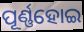
ପୂର୍ଣ୍ଣହୋଇ